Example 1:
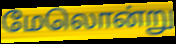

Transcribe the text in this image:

மேலொன்று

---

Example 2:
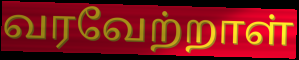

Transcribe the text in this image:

வரவேற்றாள்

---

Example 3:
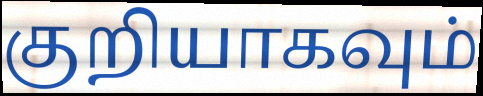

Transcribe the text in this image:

குறியாகவும்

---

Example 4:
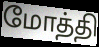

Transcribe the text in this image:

மோத்தி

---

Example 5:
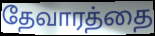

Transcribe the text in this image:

தேவாரத்தை